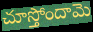
చూస్తోందామె